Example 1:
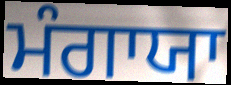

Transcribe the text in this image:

ਮੰਗਾਯਾ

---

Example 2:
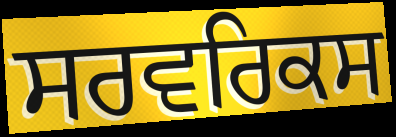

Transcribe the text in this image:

ਸਰਵਰਿਕਸ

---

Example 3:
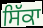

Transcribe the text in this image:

ਸਿੱਕਾ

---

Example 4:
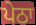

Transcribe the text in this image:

ਪੇਠਾ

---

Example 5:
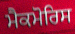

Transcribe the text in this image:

ਮੈਕਮੋਰਿਸ